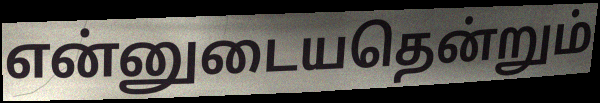
என்னுடையதென்றும்